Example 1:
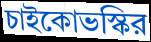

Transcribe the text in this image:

চাইকোভস্কির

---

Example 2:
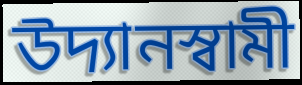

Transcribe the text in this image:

উদ্যানস্বামী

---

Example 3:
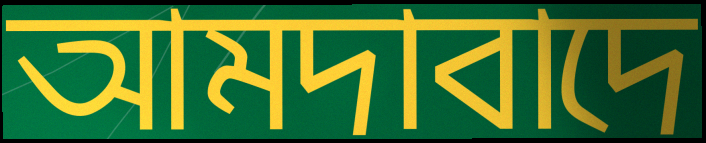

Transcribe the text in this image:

আমদাবাদে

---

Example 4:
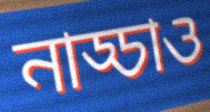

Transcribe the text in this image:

নাড্ডাও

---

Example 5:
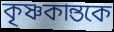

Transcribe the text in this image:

কৃষ্ণকান্তকে